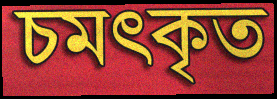
চমৎকৃত